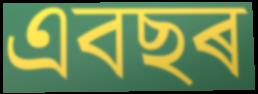
এবছৰ